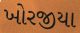
ખોરજીયા